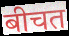
बीचत